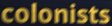
colonists